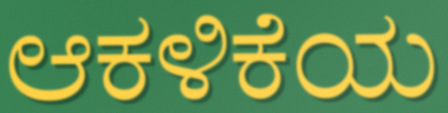
ಆಕಳಿಕೆಯ